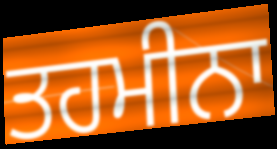
ਤਹਮੀਨਾ